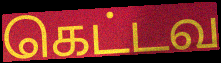
கெட்டவ